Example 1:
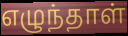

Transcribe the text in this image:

எழுந்தாள்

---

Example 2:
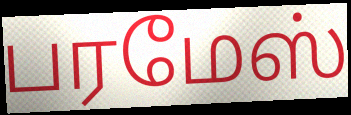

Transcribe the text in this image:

பரமேஸ்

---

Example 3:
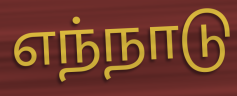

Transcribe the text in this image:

எந்நாடு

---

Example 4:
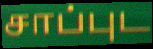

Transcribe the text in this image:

சாப்புட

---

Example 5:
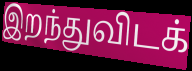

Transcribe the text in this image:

இறந்துவிடக்